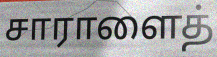
சாராளைத்